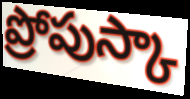
ప్రోపుస్కా